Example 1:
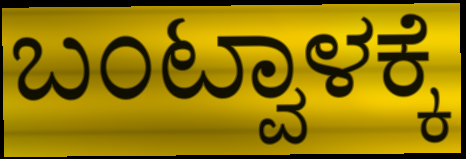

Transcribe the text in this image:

ಬಂಟ್ವಾಳಕ್ಕೆ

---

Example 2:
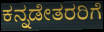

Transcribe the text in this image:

ಕನ್ನಡೇತರರಿಗೆ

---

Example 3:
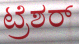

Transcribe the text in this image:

ಟ್ರೆಶರ್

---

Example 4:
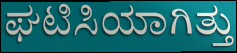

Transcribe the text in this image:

ಘಟಿಸಿಯಾಗಿತ್ತು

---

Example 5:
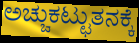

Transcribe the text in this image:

ಅಚ್ಚುಕಟ್ಟುತನಕ್ಕೆ